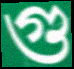
গু